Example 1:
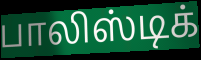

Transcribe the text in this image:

பாலிஸ்டிக்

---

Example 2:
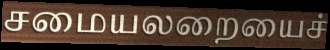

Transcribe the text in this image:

சமையலறையைச்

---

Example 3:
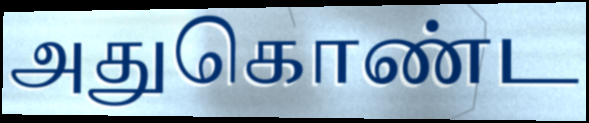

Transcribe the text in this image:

அதுகொண்ட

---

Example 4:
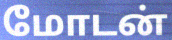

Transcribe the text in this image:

மோடன்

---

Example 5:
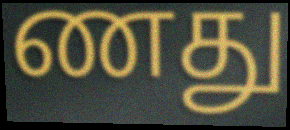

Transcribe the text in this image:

ணது